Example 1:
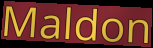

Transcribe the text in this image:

Maldon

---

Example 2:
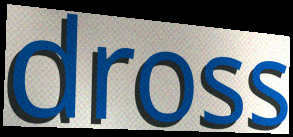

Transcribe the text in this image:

dross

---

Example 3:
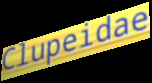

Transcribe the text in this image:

Clupeidae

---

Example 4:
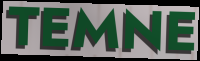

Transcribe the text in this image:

TEMNE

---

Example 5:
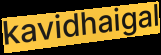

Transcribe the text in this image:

kavidhaigal